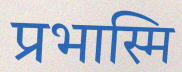
प्रभास्मि